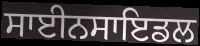
ਸਾਈਨਸਾਇਡਲ